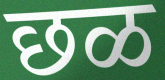
छळ